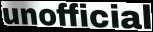
unofficial